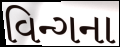
વિન્ગના